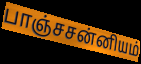
பாஞ்சசன்னியம்